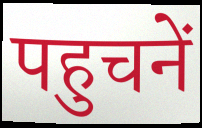
पहुचनें